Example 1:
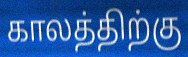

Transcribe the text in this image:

காலத்திற்கு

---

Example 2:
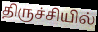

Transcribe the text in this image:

திருச்சியில்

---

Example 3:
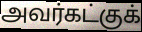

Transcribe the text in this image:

அவர்கட்குக்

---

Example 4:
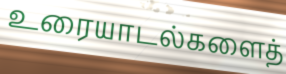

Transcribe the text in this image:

உரையாடல்களைத்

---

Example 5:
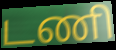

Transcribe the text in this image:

டணி